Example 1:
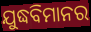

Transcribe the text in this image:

ଯୁଦ୍ଧବିମାନର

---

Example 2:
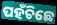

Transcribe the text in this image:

ପହଁଚିଛେ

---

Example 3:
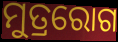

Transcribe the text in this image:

ମୁତ୍ରରୋଗ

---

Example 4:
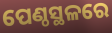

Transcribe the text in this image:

ପେଣ୍ଠସ୍ଥଳରେ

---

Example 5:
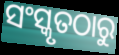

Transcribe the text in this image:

ସଂସ୍କୃତଠାରୁ